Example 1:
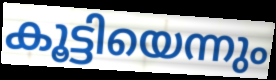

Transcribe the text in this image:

കൂട്ടിയെന്നും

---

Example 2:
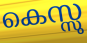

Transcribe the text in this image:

കെസ്സു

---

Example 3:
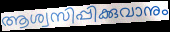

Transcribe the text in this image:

ആശ്വസിപ്പിക്കുവാനും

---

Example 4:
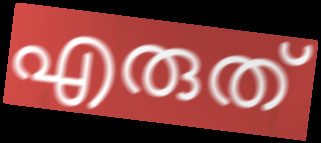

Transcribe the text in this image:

എരുത്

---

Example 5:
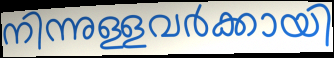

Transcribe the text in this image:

നിന്നുള്ളവർക്കായി